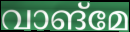
വാങ്മേ